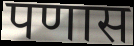
पणास